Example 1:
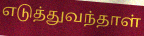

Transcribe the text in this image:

எடுத்துவந்தாள்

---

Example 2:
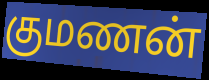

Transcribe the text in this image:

குமணன்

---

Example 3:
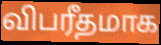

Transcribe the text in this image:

விபரீதமாக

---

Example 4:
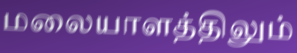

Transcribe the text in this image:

மலையாளத்திலும்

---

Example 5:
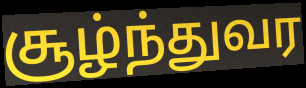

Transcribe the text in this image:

சூழ்ந்துவர